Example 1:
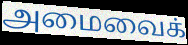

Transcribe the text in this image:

அமைவைக்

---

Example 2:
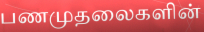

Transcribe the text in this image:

பணமுதலைகளின்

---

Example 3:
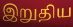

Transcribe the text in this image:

இறுதிய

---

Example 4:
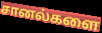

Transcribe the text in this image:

சானல்களை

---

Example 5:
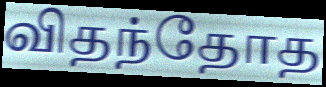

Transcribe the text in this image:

விதந்தோத